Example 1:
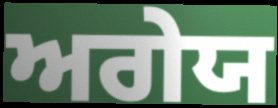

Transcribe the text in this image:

ਅਗੇਯ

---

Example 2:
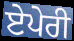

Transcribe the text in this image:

ਏਪੇਰੀ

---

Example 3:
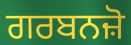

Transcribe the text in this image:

ਗਰਬਨਜ਼ੋ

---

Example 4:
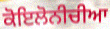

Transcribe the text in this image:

ਕੋਇਲੋਨੀਚੀਆ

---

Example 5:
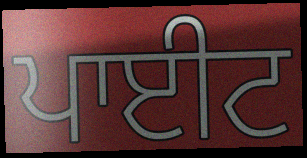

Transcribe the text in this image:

ਪਾਈਟ